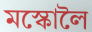
মস্কোলৈ